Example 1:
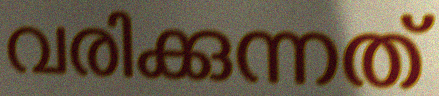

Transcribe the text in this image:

വരിക്കുന്നത്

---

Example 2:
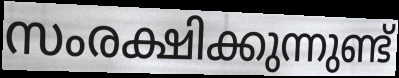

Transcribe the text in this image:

സംരക്ഷിക്കുന്നുണ്ട്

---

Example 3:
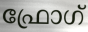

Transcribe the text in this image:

ഫ്രോഗ്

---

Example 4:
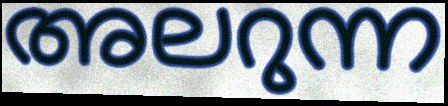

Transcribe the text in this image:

അലറുന്ന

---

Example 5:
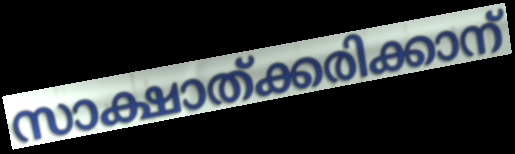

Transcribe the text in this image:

സാക്ഷാത്ക്കരിക്കാന്